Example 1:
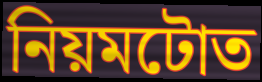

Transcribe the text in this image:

নিয়মটোত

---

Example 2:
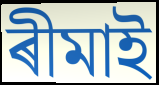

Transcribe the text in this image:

ৰীমাই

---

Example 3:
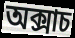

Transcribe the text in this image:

অক্সাচ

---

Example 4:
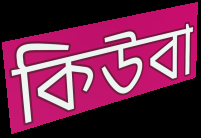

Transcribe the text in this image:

কিউবা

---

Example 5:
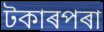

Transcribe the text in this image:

টকাৰপৰা